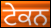
ਟੇਕਨ